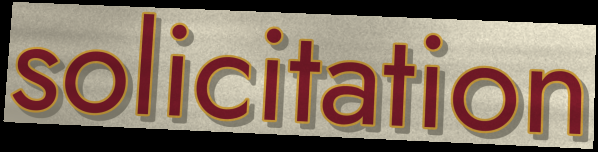
solicitation